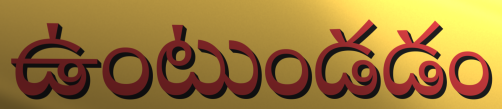
ఉంటుండడం